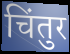
चिंतुर